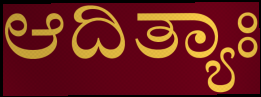
ಆದಿತ್ಯಾಃ